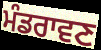
ਮੰਡਰਾਵਣ